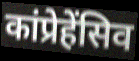
कांप्रेहेंसिव